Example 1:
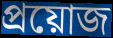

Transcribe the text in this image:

প্ৰয়োজ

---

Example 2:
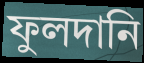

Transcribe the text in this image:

ফুলদানি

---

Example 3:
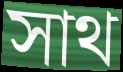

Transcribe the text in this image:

সাথ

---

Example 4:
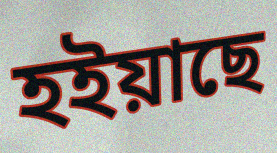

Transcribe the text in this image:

হইয়াছে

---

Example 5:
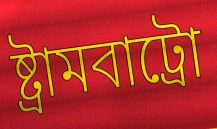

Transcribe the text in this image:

ষ্ট্ৰামবাট্ৰো